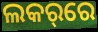
ଲକର୍‌ରେ